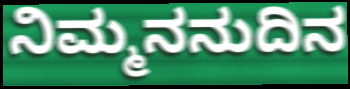
ನಿಮ್ಮನನುದಿನ